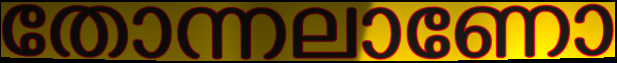
തോന്നലാണോ